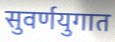
सुवर्णयुगात